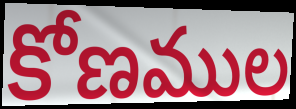
కోణముల